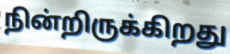
நின்றிருக்கிறது